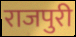
राजपुरी